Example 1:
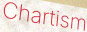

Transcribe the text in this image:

Chartism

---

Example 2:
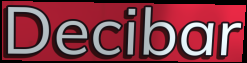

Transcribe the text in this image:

Decibar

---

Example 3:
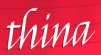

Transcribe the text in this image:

thina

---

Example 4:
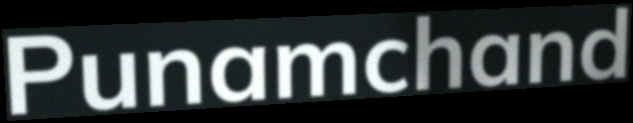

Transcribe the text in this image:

Punamchand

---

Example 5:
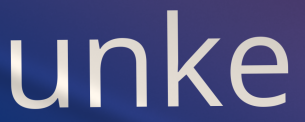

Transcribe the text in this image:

unke